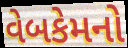
વેબકેમનો